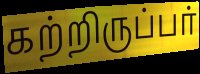
கற்றிருப்பர்